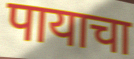
पायाचा